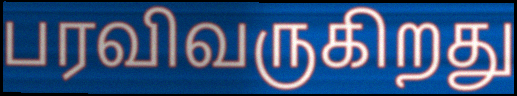
பரவிவருகிறது